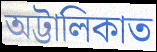
অট্টালিকাত